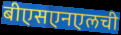
बीएसएनएलची